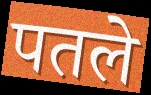
पतले